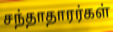
சந்தாதாரர்கள்